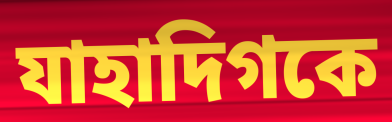
যাহাদিগকে